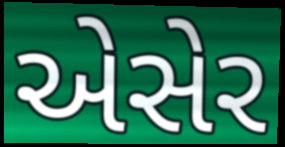
એસેર